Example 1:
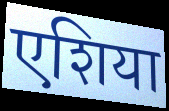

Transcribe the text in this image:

एशिया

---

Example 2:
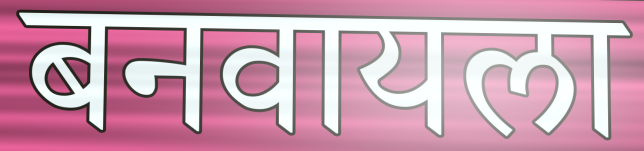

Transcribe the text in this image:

बनवायला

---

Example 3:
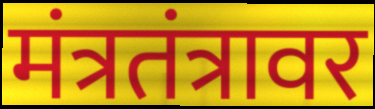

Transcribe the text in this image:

मंत्रतंत्रावर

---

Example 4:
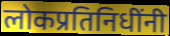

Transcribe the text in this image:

लोकप्रतिनिधींनी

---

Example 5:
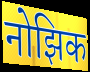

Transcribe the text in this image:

नोझिक